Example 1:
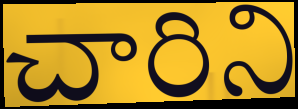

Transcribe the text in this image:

చారిని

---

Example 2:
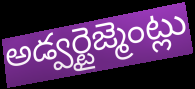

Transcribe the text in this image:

అడ్వర్టైజ్మెంట్లు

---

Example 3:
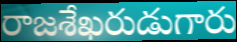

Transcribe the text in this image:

రాజశేఖరుడుగారు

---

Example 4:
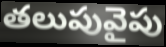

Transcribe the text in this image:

తలుపువైపు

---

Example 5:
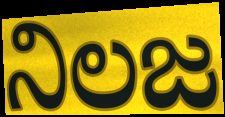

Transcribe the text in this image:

నిలజ